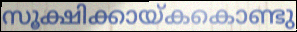
സൂക്ഷിക്കായ്കകൊണ്ടു